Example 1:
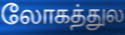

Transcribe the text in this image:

லோகத்துல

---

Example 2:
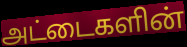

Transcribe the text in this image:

அட்டைகளின்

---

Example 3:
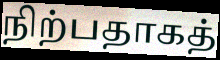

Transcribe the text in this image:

நிற்பதாகத்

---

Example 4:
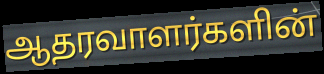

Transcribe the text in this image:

ஆதரவாளர்களின்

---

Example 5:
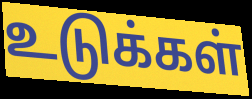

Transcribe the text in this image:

உடுக்கள்